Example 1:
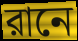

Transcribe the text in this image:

রানে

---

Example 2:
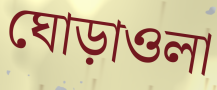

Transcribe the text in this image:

ঘোড়াওলা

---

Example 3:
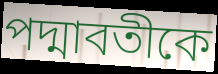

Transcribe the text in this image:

পদ্মাবতীকে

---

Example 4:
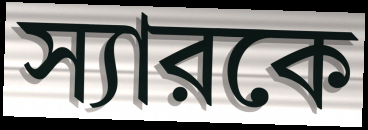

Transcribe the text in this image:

স্যারকে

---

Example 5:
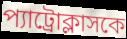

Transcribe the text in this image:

প্যাট্রোক্লাসকে